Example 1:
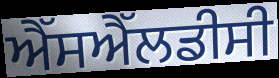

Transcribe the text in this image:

ਐੱਸਐੱਲਡੀਸੀ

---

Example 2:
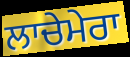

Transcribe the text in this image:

ਲਾਚੇਮੇਰਾ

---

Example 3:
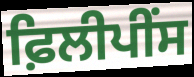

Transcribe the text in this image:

ਫ਼ਿਲੀਪੀਂਸ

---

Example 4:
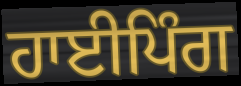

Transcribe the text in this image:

ਹਾਈਪਿੰਗ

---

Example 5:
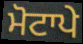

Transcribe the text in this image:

ਮੋਟਾਪੇ